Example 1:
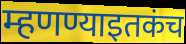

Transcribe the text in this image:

म्हणण्याइतकंच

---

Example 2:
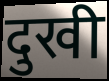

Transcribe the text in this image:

दुखी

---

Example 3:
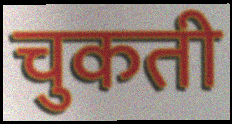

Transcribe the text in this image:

चुकती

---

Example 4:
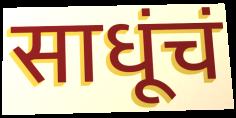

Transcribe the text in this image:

साधूंचं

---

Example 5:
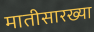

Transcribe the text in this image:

मातीसारख्या